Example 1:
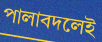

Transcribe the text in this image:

পালাবদলেই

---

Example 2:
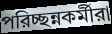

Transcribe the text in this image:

পরিচ্ছন্নকর্মীরা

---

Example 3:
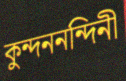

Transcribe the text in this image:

কুন্দননন্দিনী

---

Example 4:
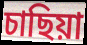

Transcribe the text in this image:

চাছিয়া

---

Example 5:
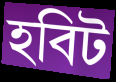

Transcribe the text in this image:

হবিট